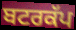
ਬਟਰਕੱਪ